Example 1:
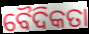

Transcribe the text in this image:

ବୈଦିକତା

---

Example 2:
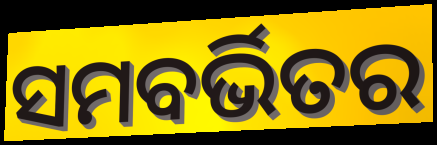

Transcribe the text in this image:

ସମବର୍ଭିତର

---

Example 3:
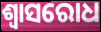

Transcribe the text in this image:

ଶ୍ୱାସରୋଧ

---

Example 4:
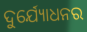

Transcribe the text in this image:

ଦୁର୍ଯ୍ଯୋଧନର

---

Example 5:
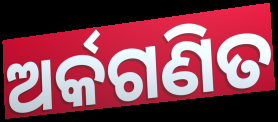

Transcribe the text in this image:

ଅର୍କଗଣିତ